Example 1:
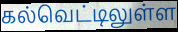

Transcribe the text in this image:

கல்வெட்டிலுள்ள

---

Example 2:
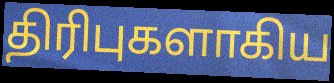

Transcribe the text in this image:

திரிபுகளாகிய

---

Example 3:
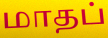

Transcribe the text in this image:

மாதப்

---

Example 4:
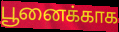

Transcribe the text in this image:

பூனைக்காக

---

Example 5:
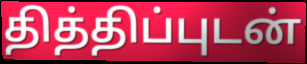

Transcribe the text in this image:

தித்திப்புடன்